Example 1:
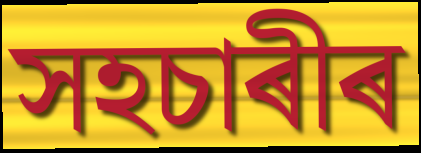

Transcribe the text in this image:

সহচাৰীৰ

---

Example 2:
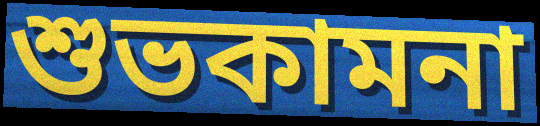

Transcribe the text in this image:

শুভকামনা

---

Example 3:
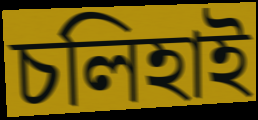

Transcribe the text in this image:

চলিহাই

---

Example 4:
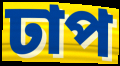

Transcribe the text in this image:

ঢাপ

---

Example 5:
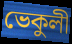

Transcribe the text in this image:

ভেকুলী